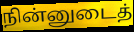
நின்னுடைத்